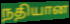
நதியான